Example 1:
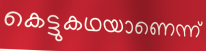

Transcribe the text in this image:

കെട്ടുകഥയാണെന്ന്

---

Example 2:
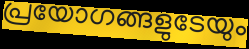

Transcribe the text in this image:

പ്രയോഗങ്ങളുടേയും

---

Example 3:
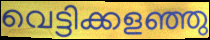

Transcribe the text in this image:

വെട്ടിക്കളഞ്ഞു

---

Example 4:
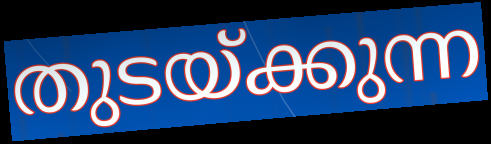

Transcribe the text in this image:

തുടയ്ക്കുന്ന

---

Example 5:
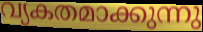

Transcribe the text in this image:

വ്യകതമാക്കുന്നു